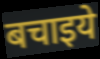
बचाइये